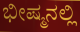
ಭೀಷ್ಮನಲ್ಲಿ